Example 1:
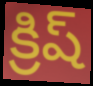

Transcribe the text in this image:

క్రిష్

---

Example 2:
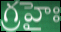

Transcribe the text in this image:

గ్రహైః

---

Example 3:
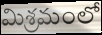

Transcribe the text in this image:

మిశ్రమంలో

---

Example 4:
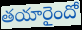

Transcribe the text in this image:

తయారైందో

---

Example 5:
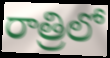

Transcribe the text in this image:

రాత్రిలో